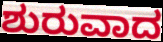
ಶುರುವಾದ